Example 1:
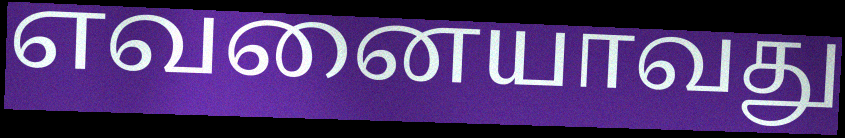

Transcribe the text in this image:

எவனையாவது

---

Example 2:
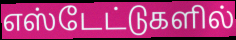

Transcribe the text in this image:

எஸ்டேட்டுகளில்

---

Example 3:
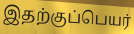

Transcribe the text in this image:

இதற்குப்பெயர்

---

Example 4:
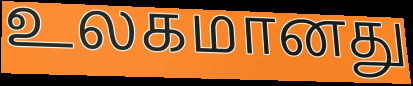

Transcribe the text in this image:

உலகமானது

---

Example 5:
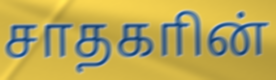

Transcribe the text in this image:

சாதகரின்